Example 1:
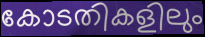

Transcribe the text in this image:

കോടതികളിലും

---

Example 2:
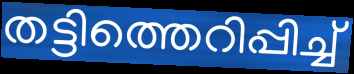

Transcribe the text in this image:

തട്ടിത്തെറിപ്പിച്ച്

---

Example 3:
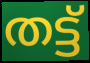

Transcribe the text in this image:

തട്ട്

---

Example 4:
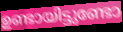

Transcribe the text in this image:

ഉണ്ടായിട്ടുണ്ടോ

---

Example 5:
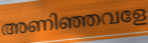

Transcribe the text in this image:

അണിഞ്ഞവളേ